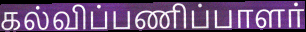
கல்விப்பணிப்பாளர்